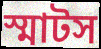
স্মাটস